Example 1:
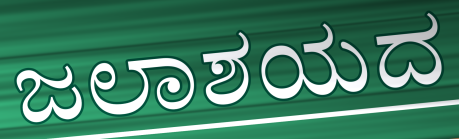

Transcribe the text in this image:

ಜಲಾಶಯದ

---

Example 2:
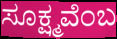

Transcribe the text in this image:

ಸೂಕ್ಷ್ಮವೆಂಬ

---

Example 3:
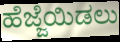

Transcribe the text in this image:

ಹೆಜ್ಜೆಯಿಡಲು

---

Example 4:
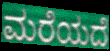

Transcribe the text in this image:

ಮರೆಯದೆ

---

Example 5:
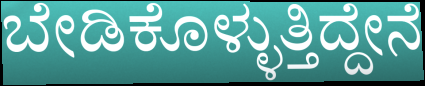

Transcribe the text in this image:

ಬೇಡಿಕೊಳ್ಳುತ್ತಿದ್ದೇನೆ